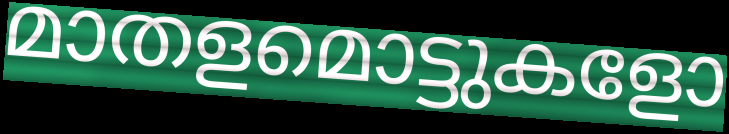
മാതളമൊട്ടുകളോ